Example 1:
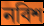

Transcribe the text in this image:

নবিশ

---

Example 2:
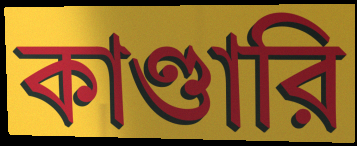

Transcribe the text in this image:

কাণ্ডারি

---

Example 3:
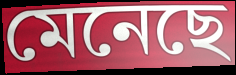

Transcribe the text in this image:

মেনেছে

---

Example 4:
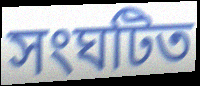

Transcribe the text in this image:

সংঘটিত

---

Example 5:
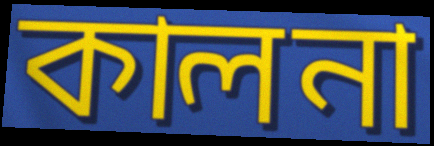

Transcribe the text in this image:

কালনা